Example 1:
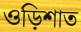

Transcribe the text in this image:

ওড়িশাত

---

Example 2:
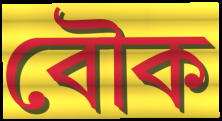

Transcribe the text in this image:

বৌক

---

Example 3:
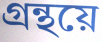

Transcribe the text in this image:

গ্ৰন্থয়ে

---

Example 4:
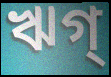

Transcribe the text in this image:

ঋগ্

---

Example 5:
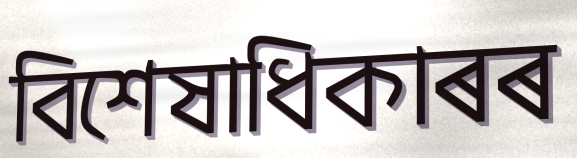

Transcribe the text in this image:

বিশেষাধিকাৰৰ